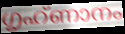
ഗൃഹ്ണാനം